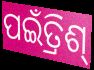
ପଇଁତ୍ରିଶ୍